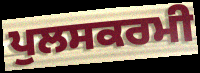
ਪੁਲਸਕਰਮੀ